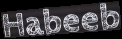
Habeeb